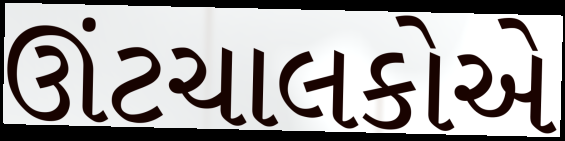
ઊંટચાલકોએ